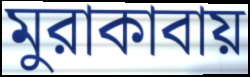
মুরাকাবায়